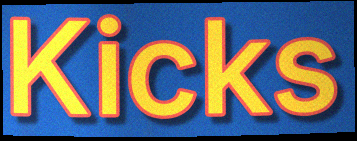
Kicks